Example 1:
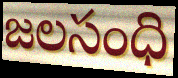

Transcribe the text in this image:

జలసంధి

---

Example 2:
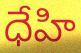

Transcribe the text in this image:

ధేహి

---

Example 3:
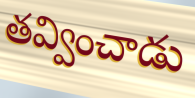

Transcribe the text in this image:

తవ్వించాడు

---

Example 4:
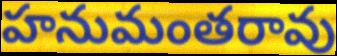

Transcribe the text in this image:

హనుమంతరావు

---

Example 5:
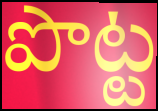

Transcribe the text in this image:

పొట్ట